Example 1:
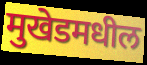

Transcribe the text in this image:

मुखेडमधील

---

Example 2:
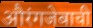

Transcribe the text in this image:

औरंगजेबाची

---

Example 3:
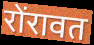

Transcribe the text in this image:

रोंरावत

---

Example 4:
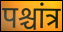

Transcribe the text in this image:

पश्चांत्र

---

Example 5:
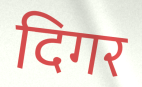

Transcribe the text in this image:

दिगर